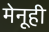
मेनूही